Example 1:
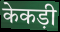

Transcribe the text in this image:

केकड़ी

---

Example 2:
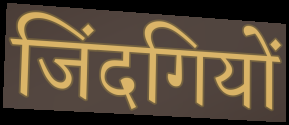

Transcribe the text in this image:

जिंदगियों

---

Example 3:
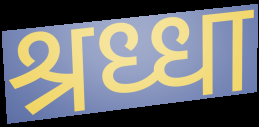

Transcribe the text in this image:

श्रध्धा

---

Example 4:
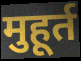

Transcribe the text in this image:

मुहूर्त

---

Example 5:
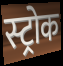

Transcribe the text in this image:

स्‍ट्रोक